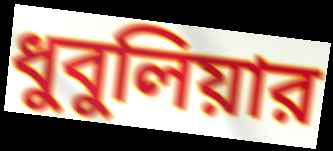
ধুবুলিয়ার